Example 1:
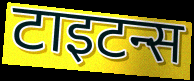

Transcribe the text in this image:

टाइटन्स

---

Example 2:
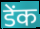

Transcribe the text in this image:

डेंक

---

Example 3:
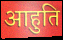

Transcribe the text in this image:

आहुति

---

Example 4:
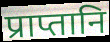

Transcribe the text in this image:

प्राप्तानि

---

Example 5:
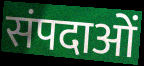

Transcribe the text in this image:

संपदाओं